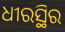
ଧୀରସ୍ଥିର